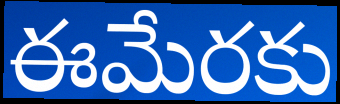
ఈమేరకు